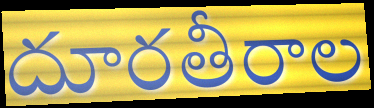
దూరతీరాల